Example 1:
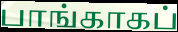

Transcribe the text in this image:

பாங்காகப்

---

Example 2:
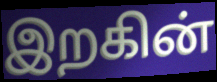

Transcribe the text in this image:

இறகின்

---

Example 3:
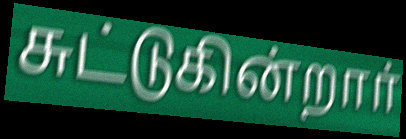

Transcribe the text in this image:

சுட்டுகின்றார்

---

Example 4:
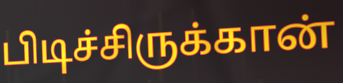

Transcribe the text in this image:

பிடிச்சிருக்கான்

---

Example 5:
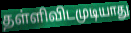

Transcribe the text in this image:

தள்ளிவிடமுடியாது